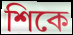
শিকে